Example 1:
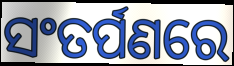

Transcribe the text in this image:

ସଂତର୍ପଣରେ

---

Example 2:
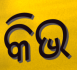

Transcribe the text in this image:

କିଭ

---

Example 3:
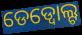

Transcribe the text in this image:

ଡେଡ୍ବୋଲ୍ଟ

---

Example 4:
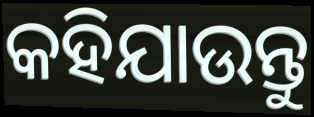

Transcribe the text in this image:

କହିଯାଉନ୍ତୁ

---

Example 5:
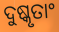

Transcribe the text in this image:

ଦୁଷ୍କୃତାଂ